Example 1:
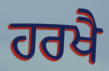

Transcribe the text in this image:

ਹਰਖੈ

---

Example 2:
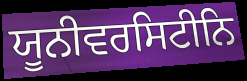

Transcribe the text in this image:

ਯੂਨੀਵਰਸਿਟੀਨਿ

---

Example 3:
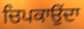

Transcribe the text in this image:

ਚਿਪਕਾਉਂਦਾ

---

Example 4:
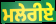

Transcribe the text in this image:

ਮਲੇਰੀਏ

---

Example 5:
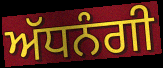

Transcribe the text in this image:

ਅੱਧਨੰਗੀ